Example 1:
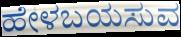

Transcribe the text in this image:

ಹೇಳಬಯಸುವ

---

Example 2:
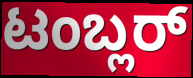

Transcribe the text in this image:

ಟಂಬ್ಲರ್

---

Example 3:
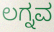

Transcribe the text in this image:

ಲಗ್ನವ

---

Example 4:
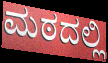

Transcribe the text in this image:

ಮಠದಲ್ಲಿ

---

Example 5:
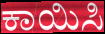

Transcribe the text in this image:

ಕಾಯಿಸಿ